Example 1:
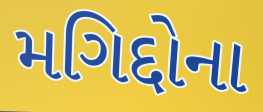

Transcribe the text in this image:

મગિદ્દોના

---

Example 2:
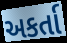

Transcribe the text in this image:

અકર્તા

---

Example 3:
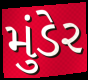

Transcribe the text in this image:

મુંડેર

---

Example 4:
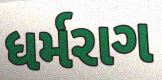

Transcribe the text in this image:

ધર્મરાગ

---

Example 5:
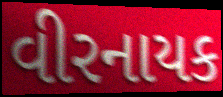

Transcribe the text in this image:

વીરનાયક